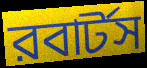
রবার্টস